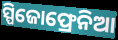
ସ୍ପିଜୋଫ୍ରେନିଆ